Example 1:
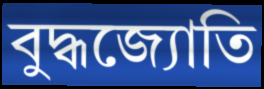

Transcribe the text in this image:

বুদ্ধজ্যোতি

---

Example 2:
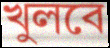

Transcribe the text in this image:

খুলবে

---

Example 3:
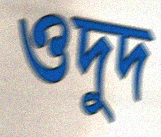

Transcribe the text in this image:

ওদুদ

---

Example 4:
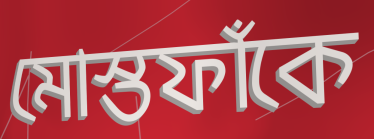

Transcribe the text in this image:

মোস্তফাঁকে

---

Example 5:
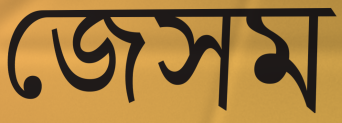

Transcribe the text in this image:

জেসম